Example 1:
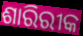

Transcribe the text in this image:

ଶାରିରୀକ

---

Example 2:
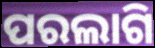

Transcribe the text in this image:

ପରଲାଗି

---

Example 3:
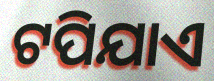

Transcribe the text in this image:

ଟପିଯାଏ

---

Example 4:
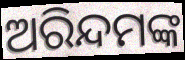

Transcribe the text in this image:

ଅରିନ୍ଦମଙ୍କ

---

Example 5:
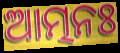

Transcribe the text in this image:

ଆତ୍ମନଃ